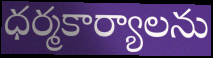
ధర్మకార్యాలను